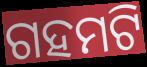
ଗହମଟି